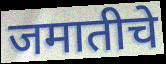
जमातीचे